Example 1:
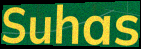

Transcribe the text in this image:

Suhas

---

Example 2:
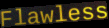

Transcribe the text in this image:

Flawless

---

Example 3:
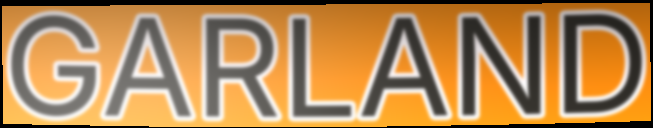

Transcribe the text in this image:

GARLAND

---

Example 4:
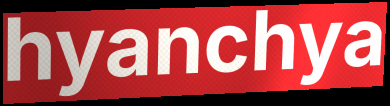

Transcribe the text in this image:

hyanchya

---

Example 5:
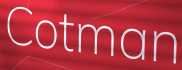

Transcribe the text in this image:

Cotman